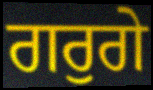
ਗਰੁਗੇ